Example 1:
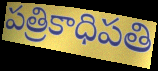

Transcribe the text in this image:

పత్రికాధిపతి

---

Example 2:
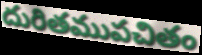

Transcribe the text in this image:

దురితముపచితం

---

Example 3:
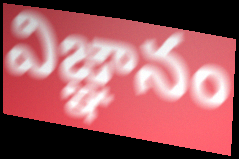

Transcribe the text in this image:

విజ్ఞానం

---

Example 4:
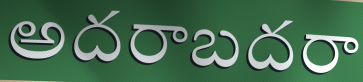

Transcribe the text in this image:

అదరాబదరా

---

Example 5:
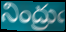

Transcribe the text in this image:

నింద్రుఁ